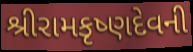
શ્રીરામકૃષ્ણદેવની